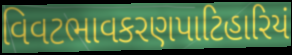
વિવટભાવકરણપાટિહારિયં